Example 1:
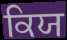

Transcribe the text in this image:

ਕਿਯ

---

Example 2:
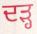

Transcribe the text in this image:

ਦੜ੍ਹ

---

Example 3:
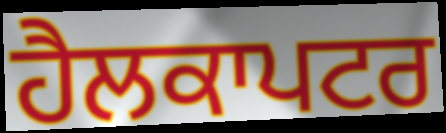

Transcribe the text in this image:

ਹੈਲਕਾਪਟਰ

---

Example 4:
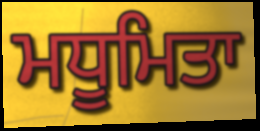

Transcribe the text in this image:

ਮਧੂਮਿਤਾ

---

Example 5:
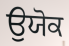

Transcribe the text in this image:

ਉਯੋਕ